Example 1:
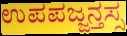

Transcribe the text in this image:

ಉಪಪಜ್ಜನ್ತಸ್ಸ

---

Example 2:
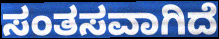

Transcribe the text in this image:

ಸಂತಸವಾಗಿದೆ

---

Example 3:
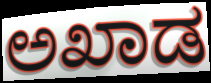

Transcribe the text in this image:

ಅಖಾಡ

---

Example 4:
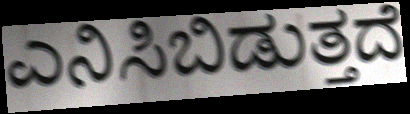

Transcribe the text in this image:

ಎನಿಸಿಬಿಡುತ್ತದೆ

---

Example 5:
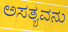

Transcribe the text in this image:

ಅಸತ್ಯವನು